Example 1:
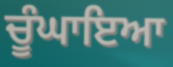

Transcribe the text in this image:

ਚੂੰਘਾਇਆ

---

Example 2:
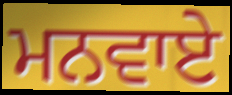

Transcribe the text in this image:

ਮਨਵਾਏ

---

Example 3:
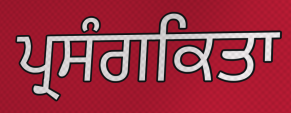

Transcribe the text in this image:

ਪ੍ਰਸੰਗਕਿਤਾ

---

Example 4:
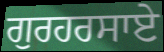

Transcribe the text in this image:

ਗੁਰਹਰਸਾਏ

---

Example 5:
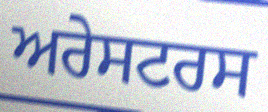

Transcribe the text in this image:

ਅਰੇਸਟਰਸ